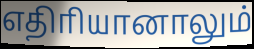
எதிரியானாலும்